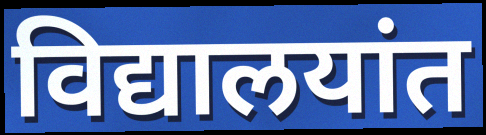
विद्यालयांत